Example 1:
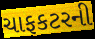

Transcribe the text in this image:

ચાફકટરની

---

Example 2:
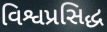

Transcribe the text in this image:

વિશ્વપ્રસિદ્ધ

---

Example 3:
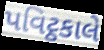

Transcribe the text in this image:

પવિટ્ઠકાલે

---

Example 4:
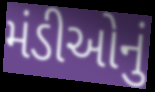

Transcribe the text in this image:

મંડીઓનું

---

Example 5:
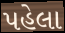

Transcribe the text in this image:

પહેલા